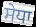
ਸੇਧਾ